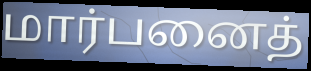
மார்பனைத்